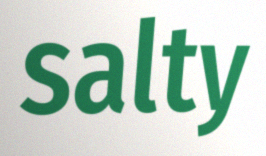
salty